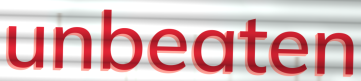
unbeaten